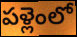
పళ్లెంలో